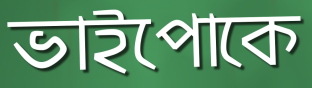
ভাইপোকে